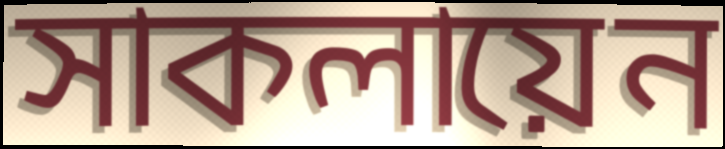
সাকলায়েন